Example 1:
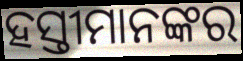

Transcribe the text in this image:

ହସ୍ତୀମାନଙ୍କର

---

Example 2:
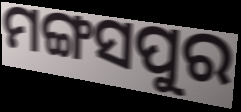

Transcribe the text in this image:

ମଙ୍ଗସପୁର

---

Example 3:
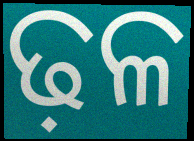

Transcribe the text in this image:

ଢ଼ଳ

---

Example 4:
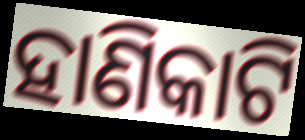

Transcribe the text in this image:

ହାଣିକାଟି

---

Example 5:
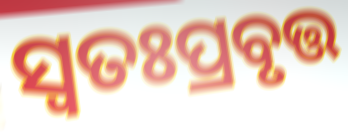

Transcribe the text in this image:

ସ୍ବତଃପ୍ରବୃତ୍ତ